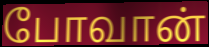
போவான்